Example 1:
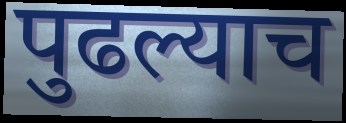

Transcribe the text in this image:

पुढल्याच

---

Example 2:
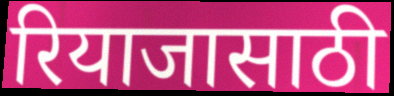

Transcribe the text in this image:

रियाजासाठी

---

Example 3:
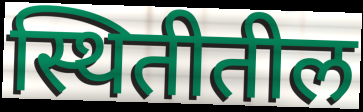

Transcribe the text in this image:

स्थितीतील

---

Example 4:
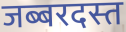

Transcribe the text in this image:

जब्बरदस्त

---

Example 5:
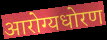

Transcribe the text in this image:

आरोग्यधोरण